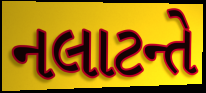
નલાટન્તે